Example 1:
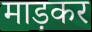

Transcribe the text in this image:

माड़कर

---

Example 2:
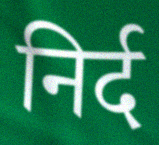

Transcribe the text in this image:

निर्द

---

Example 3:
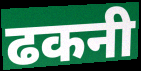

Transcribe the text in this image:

ढकनी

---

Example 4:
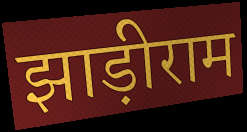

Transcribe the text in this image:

झाड़ीराम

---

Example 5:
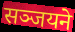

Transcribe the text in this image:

सञ्जयने